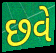
છવે